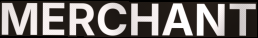
MERCHANT